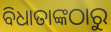
ବିଧାତାଙ୍କଠାରୁ